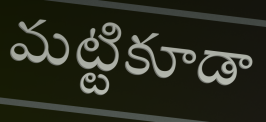
మట్టికూడా